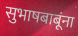
सुभाषबाबूंना